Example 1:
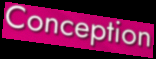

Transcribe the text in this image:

Conception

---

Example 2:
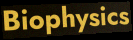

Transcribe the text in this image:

Biophysics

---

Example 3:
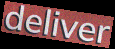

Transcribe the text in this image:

deliver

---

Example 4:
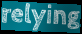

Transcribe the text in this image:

relying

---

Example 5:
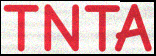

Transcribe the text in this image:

TNTA